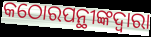
କଠୋରପନ୍ଥୀଙ୍କଦ୍ୱାରା